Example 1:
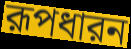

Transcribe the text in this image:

রূপধারন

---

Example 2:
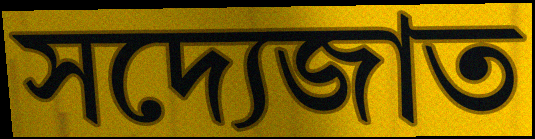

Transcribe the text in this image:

সদ্যেজাত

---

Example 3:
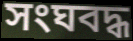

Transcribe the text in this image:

সংঘবদ্ধ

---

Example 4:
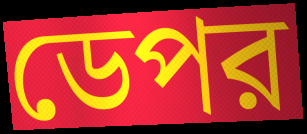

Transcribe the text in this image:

ডেপর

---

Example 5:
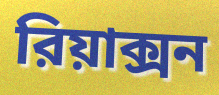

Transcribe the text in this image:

রিয়াক্সন